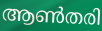
ആൺതരി